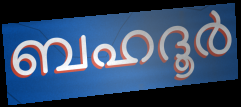
ബഹദൂർ